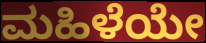
ಮಹಿಳೆಯೇ